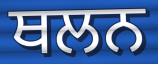
ਥਲਨ